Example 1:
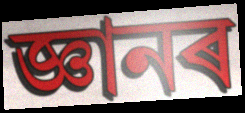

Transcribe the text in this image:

জ্ঞানৰ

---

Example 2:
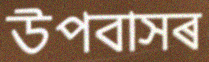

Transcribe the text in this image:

উপবাসৰ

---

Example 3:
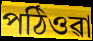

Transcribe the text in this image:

পঠিওৱা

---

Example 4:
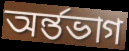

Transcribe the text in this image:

অৰ্ন্তভাগ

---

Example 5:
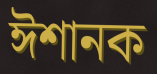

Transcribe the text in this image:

ঈশানক